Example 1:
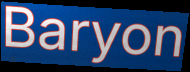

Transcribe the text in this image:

Baryon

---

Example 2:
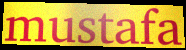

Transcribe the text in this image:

mustafa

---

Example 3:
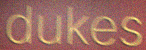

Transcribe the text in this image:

dukes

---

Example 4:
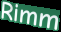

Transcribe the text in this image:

Rimm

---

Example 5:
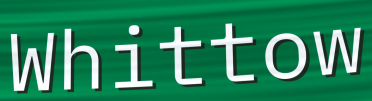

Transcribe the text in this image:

Whittow